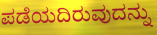
ಪಡೆಯದಿರುವುದನ್ನು